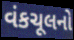
વંકચૂલનો